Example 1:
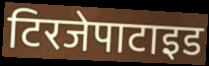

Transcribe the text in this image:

टिरजेपाटाइड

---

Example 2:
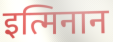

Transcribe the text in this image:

इत्मिनान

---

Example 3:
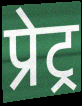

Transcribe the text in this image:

प्रेट्र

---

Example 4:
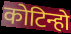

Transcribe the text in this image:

कोटिन्हो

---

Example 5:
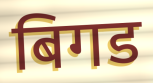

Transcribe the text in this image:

बिगड